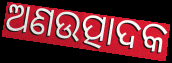
ଅଣଉତ୍ପାଦକ